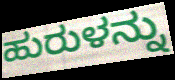
ಹುರುಳನ್ನು